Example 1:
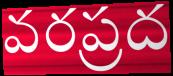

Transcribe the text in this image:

వరప్రద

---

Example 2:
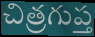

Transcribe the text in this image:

చిత్రగుప్త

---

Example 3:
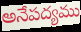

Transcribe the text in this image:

అనేపద్యము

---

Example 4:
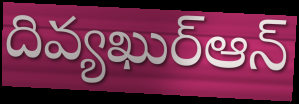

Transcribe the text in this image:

దివ్యఖుర్ఆన్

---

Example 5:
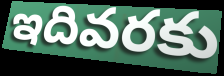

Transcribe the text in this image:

ఇదివరకు